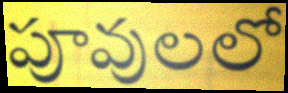
పూవులలో